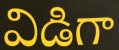
విడిగా